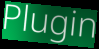
Plugin